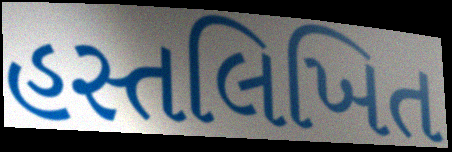
હસ્તલિખિત